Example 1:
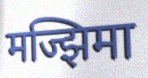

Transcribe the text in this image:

मज्झिमा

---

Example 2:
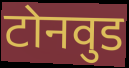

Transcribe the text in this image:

टोनवुड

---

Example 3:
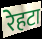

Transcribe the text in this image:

रेहटा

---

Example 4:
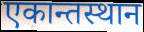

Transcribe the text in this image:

एकान्तस्थान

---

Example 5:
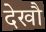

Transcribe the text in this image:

देखौ